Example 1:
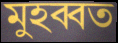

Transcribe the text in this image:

মুহব্বত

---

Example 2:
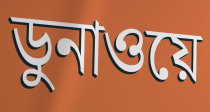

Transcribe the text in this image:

ডুনাওয়ে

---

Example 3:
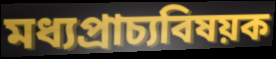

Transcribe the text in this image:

মধ্যপ্রাচ্যবিষয়ক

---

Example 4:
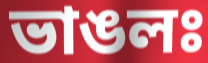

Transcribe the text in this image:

ভাঙলঃ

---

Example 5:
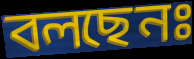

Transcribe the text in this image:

বলছেনঃ